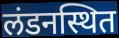
लंडनस्थित